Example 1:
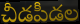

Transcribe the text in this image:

చీడపీడల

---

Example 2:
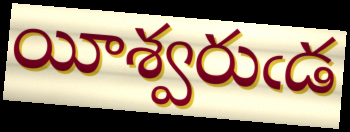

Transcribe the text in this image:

యీశ్వరుఁడ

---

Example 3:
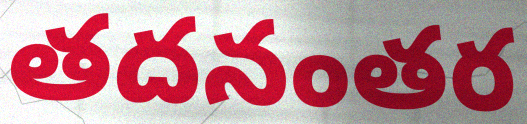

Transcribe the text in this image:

తదనంతర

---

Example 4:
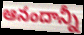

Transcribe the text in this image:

ఆనందాన్నీ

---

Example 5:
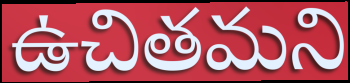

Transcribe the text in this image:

ఉచితమని